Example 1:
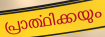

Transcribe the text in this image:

പ്രാൎത്ഥിക്കയും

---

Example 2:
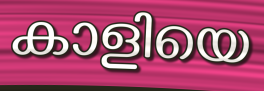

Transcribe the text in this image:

കാളിയെ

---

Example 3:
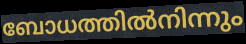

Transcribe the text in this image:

ബോധത്തിൽനിന്നും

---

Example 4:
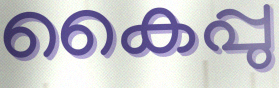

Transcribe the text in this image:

കൈപ്പു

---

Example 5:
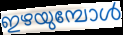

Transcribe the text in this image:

ഇഴയുമ്പോൾ